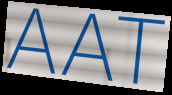
AAT